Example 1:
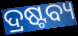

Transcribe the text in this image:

ଦ୍ରଷ୍ଟବ୍ୟ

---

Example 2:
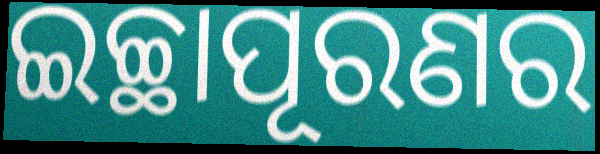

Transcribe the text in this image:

ଇଚ୍ଛାପୂରଣର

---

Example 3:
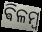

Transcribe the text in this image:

ଵିଳମ୍ବ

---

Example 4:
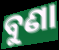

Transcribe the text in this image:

ବୁଣା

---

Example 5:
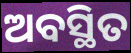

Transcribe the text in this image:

ଅବସ୍ଥିତ